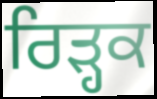
ਰਿੜ੍ਹਕ